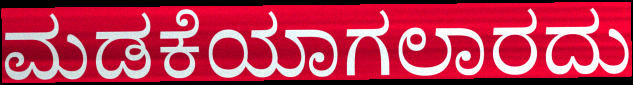
ಮಡಕೆಯಾಗಲಾರದು